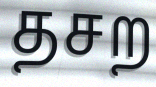
தசற